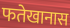
फतेखानास